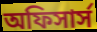
অফিসার্স